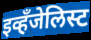
इव्हँजेलिस्ट